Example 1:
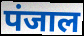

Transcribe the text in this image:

पंजाल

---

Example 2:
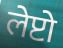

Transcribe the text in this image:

लेप्टो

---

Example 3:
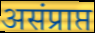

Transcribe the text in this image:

असंप्राप्त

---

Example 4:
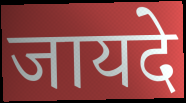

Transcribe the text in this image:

जायदे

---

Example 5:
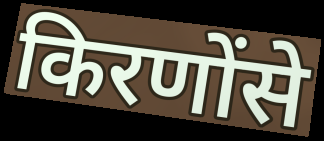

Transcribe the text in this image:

किरणोंसे